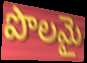
పొలమై